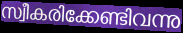
സ്വീകരിക്കേണ്ടിവന്നു